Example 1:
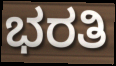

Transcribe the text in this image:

ಭರತಿ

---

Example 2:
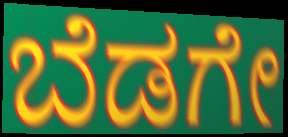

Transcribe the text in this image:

ಬೆಡಗೇ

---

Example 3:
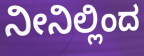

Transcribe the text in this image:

ನೀನಿಲ್ಲಿಂದ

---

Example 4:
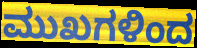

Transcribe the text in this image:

ಮುಖಗಳಿಂದ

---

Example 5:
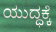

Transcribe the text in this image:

ಯುದ್ಧಕ್ಕೆ